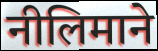
नीलिमाने